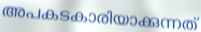
അപകടകാരിയാക്കുന്നത്